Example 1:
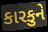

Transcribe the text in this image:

કારકુને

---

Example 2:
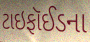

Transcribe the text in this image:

ટાઇફૉઈડના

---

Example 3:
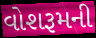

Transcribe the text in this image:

વોશરૂમની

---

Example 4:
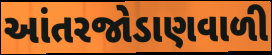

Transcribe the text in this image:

આંતરજોડાણવાળી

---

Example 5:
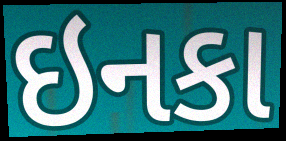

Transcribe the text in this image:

ઇનકા